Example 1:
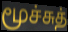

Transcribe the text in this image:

மூச்சுத்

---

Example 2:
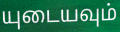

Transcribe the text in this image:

யுடையவும்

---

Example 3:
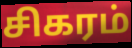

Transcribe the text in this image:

சிகரம்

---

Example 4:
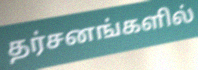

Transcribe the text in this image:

தர்சனங்களில்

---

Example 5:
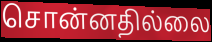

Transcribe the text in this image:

சொன்னதில்லை